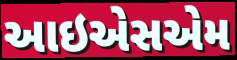
આઇએસએમ